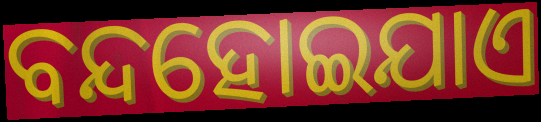
ବନ୍ଦହୋଇଯାଏ